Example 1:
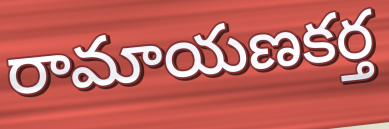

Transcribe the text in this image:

రామాయణకర్త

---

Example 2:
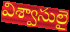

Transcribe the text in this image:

విశ్వాసులై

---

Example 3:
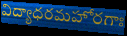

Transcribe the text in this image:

విద్యాధరమహోరగాః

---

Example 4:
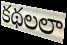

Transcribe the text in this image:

కథలలా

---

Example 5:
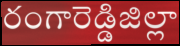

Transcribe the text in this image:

రంగారెడ్డిజిల్లా